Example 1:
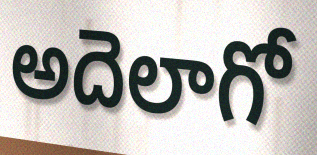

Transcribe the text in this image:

అదెలాగో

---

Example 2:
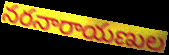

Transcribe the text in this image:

నరనారాయణుల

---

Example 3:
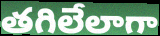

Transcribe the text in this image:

తగిలేలాగా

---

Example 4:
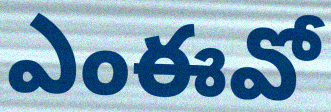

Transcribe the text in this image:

ఎంఈవో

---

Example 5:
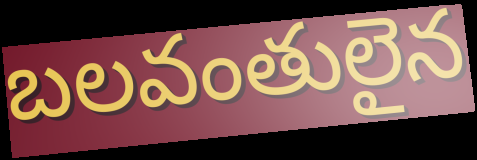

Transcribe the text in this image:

బలవంతులైన